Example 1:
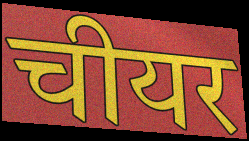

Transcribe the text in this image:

चीयर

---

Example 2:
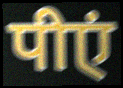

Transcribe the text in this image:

पीएं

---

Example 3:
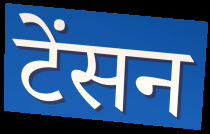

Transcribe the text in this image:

टेंसन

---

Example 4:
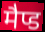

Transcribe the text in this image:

मैप्ड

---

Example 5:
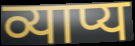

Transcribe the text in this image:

व्याप्य